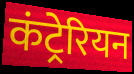
कंट्रेरियन